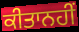
ਕੀਤਾਨਹੀਂ